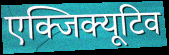
एक्जिक्यूटिव